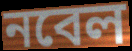
নবেল